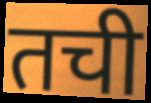
तची